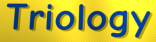
Triology